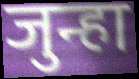
जुन्हा